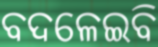
ବଦଳେଇବି